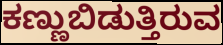
ಕಣ್ಣುಬಿಡುತ್ತಿರುವ